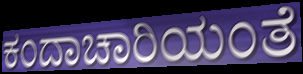
ಕಂದಾಚಾರಿಯಂತೆ